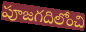
పూజగదిలోంచి